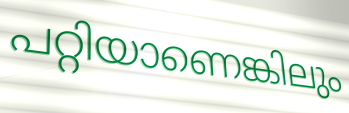
പറ്റിയാണെങ്കിലും